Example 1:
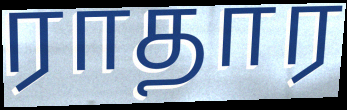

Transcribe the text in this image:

ராதார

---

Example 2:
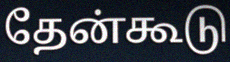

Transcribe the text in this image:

தேன்கூடு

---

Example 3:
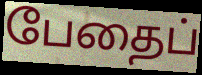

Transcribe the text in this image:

பேதைப்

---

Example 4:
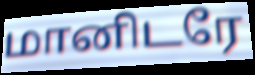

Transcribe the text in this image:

மானிடரே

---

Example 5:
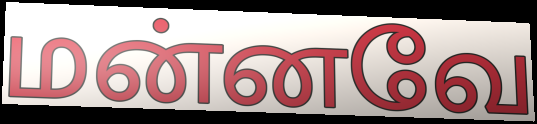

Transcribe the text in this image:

மன்னவே